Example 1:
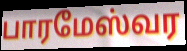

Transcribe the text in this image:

பாரமேஸ்வர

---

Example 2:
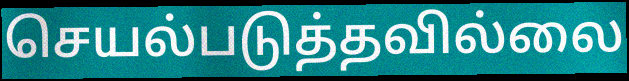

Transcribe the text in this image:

செயல்படுத்தவில்லை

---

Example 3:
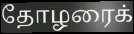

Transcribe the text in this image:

தோழரைக்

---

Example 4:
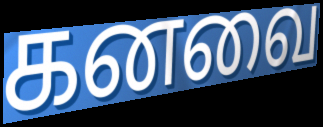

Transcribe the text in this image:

கனவை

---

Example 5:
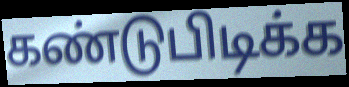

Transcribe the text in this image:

கண்டுபிடிக்க